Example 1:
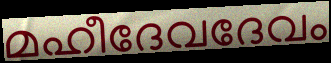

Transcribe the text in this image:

മഹീദേവദേവം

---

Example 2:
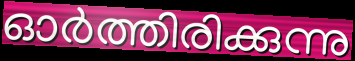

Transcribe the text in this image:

ഓർത്തിരിക്കുന്നു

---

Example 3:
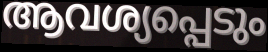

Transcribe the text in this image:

ആവശ്യപ്പെടും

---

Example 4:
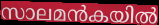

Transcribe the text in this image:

സാലമൻകയിൽ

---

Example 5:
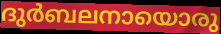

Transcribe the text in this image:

ദുർബലനായൊരു